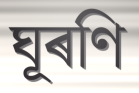
ঘূৰণি